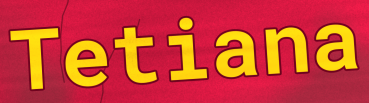
Tetiana